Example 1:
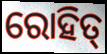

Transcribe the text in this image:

ରୋହିତ୍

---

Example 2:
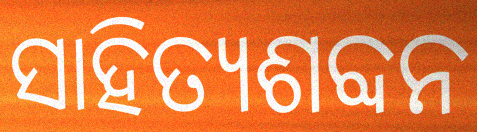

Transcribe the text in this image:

ସାହିତ୍ୟଶବ୍ଦନ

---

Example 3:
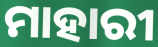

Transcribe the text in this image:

ମାହାରୀ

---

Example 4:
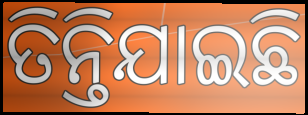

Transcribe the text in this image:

ତିନ୍ତିଯାଇଛି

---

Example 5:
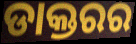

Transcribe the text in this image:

ଡାକ୍ତରର